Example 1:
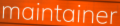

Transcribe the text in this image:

maintainer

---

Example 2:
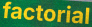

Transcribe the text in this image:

factorial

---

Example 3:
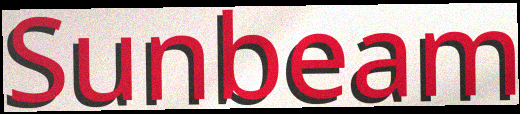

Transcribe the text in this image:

Sunbeam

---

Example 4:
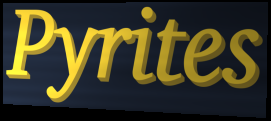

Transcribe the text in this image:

Pyrites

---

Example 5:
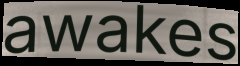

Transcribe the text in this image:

awakes